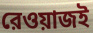
রেওয়াজই